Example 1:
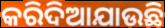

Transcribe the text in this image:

କରିଦିଆଯାଉଛି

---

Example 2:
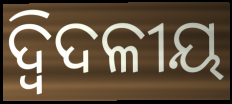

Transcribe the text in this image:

ଦ୍ବିଦଳୀୟ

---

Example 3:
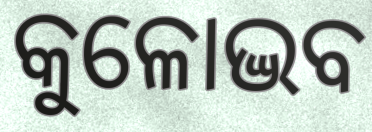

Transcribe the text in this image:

କୁଳୋଦ୍ଭବ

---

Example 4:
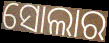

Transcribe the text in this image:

ସୋଲାର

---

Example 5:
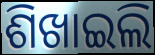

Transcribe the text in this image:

ଶିଖାଇଲି